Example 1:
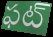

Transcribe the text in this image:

ఫట్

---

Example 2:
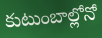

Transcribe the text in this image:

కుటుంబాల్లోనో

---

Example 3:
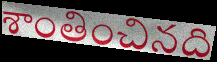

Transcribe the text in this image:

శాంతించినది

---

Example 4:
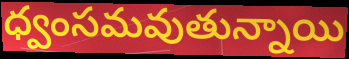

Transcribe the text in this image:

ధ్వంసమవుతున్నాయి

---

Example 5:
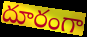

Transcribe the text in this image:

దూరంగా